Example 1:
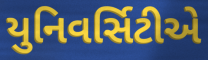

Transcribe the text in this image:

યુનિવર્સિટીએ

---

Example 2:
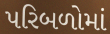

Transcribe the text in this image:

પરિબળોમાં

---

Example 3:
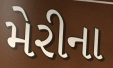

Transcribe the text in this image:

મેરીના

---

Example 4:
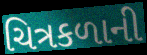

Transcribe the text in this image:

ચિત્રકળાની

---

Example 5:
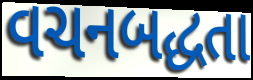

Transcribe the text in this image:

વચનબદ્ધતા